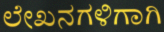
ಲೇಖನಗಳಿಗಾಗಿ